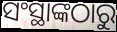
ସଂସ୍ଥାଙ୍କଠାରୁ